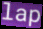
lap